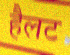
हैलट